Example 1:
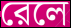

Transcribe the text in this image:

রেলে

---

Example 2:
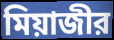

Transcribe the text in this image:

মিয়াজীর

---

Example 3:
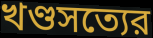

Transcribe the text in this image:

খণ্ডসত্যের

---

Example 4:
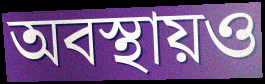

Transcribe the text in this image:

অবস্থায়ও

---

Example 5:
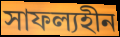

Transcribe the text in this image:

সাফল্যহীন